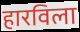
हारविला